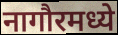
नागौरमध्ये